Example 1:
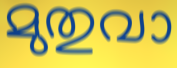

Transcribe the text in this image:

മുതുവാ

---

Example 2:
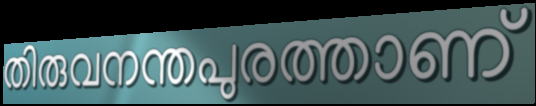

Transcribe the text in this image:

തിരുവനന്തപുരത്താണ്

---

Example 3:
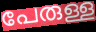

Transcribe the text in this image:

പേരുള്ള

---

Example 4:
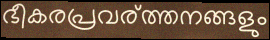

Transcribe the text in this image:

ഭീകരപ്രവര്ത്തനങ്ങളും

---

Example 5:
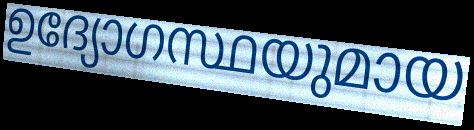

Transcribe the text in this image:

ഉദ്യോഗസ്ഥയുമായ